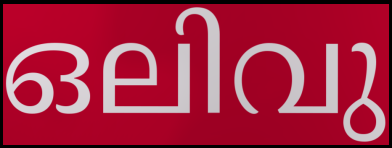
ഒലിവു